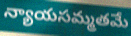
న్యాయసమ్మతమే